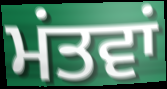
ਮਂਤਵਾਂ